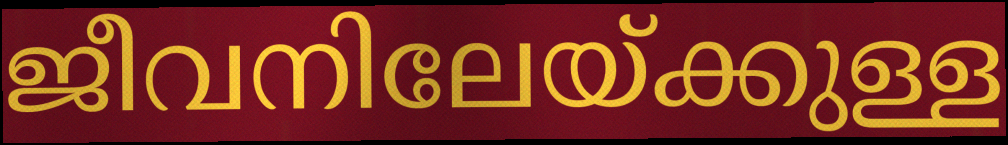
ജീവനിലേയ്ക്കുള്ള